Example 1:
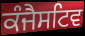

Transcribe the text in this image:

ਕੰਜੈਸਟਿਵ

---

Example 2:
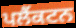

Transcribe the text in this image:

ਪਲੈਂਕਟਨ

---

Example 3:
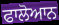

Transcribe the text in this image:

ਫਾਲੋਆਨ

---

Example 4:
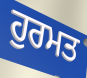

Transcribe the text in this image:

ਹੁਰਮਤ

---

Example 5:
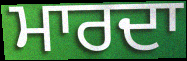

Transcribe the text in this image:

ਮਾਰਦਾ